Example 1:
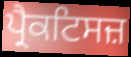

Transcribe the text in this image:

ਪ੍ਰੈਕਟਿਸਜ਼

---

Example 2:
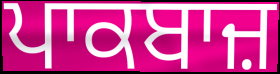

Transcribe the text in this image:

ਪਾਕਬਾਜ਼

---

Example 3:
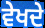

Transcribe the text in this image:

ਵੇਖਦੇ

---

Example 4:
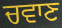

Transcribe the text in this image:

ਚਵਾਣ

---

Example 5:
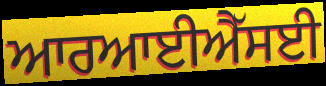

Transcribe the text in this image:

ਆਰਆਈਐੱਸਈ